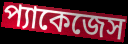
প্যাকেজেস